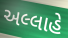
અલ્લાહે